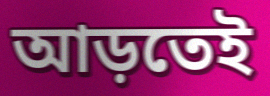
আড়তেই